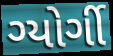
ગ્યોર્ગી